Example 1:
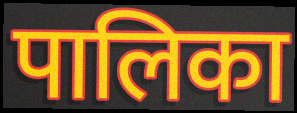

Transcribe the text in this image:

पालिका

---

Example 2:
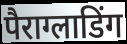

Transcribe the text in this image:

पैराग्लाडिंग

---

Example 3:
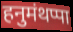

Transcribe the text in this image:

हनुमंथप्पा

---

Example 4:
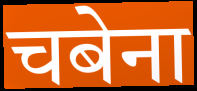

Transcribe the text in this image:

चबेना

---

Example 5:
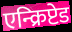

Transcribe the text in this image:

एन्क्रिप्टेड